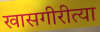
खासगीरीत्या